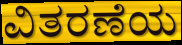
ವಿತರಣೆಯ